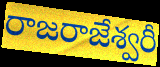
రాజరాజేశ్వరీ